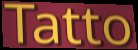
Tatto